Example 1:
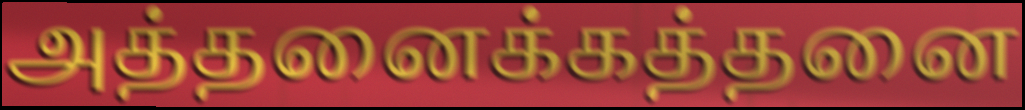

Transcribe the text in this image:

அத்தனைக்கத்தனை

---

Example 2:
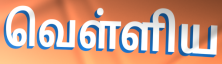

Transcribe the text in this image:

வெள்ளிய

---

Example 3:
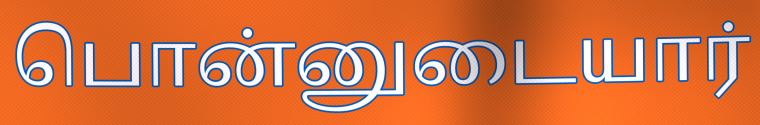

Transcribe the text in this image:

பொன்னுடையார்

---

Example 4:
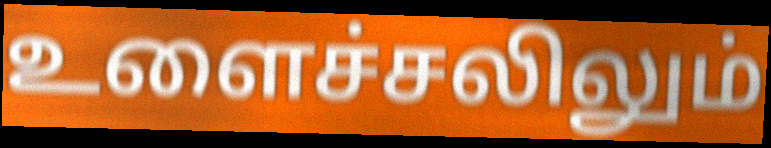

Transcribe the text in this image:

உளைச்சலிலும்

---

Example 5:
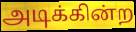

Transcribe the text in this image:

அடிக்கின்ற